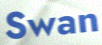
Swan